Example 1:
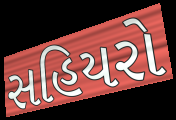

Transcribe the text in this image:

સહિયરો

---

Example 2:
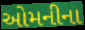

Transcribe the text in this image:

ઓમનીના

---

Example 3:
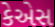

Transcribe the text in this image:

કેએસ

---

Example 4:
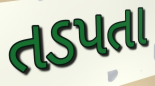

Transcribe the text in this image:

તડપતા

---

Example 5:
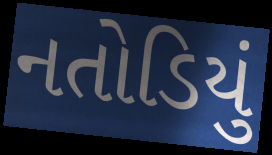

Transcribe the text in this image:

નતોડિયું